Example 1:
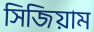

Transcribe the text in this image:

সিজিয়াম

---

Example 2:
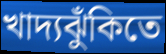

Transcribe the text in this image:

খাদ্যঝুঁকিতে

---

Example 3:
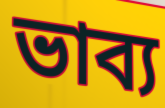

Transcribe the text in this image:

ভাব্য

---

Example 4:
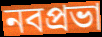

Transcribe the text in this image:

নবপ্রভা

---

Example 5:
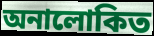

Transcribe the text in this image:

অনালোকিত